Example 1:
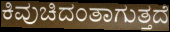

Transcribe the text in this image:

ಕಿವುಚಿದಂತಾಗುತ್ತದೆ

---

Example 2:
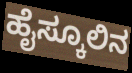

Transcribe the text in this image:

ಹೈಸ್ಕೂಲಿನ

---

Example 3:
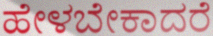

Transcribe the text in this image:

ಹೇಳಬೇಕಾದರೆ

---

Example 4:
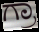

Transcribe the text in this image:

ಗ್ರಾ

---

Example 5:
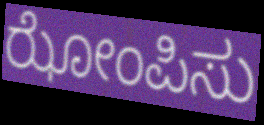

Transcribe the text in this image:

ಝೋಂಪಿಸು